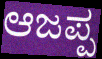
ಆಜಪ್ಪ